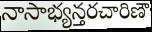
నాసాభ్యన్తరచారిణౌ